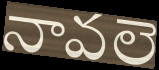
నావలె